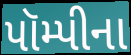
પૉમ્પીના